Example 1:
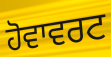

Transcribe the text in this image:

ਹੋਵਾਵਰਟ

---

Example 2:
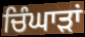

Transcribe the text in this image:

ਚਿੰਘਾੜਾਂ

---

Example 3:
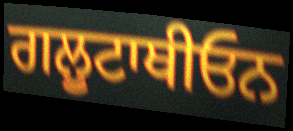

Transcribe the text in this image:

ਗਲੂਟਾਥੀਓਨ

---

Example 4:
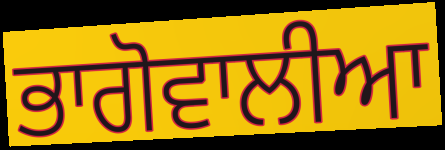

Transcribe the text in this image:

ਭਾਗੋਵਾਲੀਆ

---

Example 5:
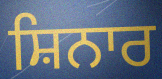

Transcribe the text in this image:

ਸ਼ਿਨਾਰ